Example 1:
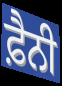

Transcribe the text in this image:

ਫ਼ੈਨੀ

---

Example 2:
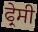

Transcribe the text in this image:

ਫ੍ਰੇਸੀ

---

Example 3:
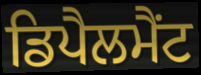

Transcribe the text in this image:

ਡਿਪੈਲਮੈਂਟ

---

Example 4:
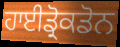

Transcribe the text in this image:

ਹਾਈਡ੍ਰੋਕਡੋਨ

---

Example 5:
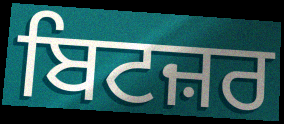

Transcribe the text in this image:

ਬਿਟਜ਼ਰ